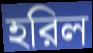
হরিল